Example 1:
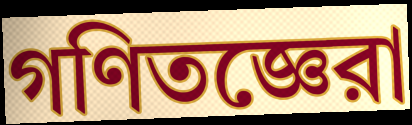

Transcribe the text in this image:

গণিতজ্ঞেরা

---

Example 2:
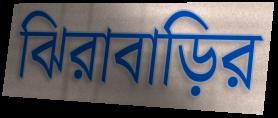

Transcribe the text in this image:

ঝিরাবাড়ির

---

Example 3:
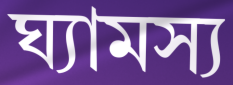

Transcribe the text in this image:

ঘ্যামস্য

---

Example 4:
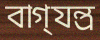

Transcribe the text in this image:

বাগ্‌যন্ত্র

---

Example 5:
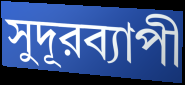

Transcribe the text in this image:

সুদূরব্যাপী